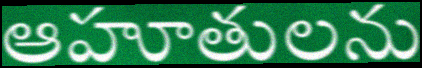
ఆహూతులను